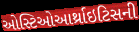
ઓસ્ટિઓઆર્થ્રાઇટિસની